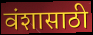
वंशासाठी